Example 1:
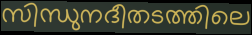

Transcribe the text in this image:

സിന്ധുനദീതടത്തിലെ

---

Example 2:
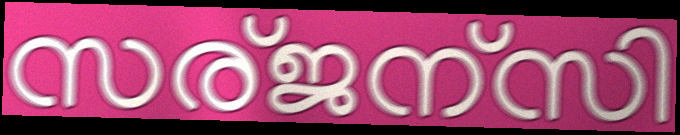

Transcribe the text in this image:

സര്ജന്സി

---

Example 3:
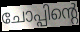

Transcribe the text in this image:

ചോപ്പിന്റെ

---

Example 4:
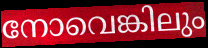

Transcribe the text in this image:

നോവെങ്കിലും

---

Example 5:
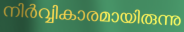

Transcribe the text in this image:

നിർവ്വികാരമായിരുന്നു